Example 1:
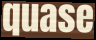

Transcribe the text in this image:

quase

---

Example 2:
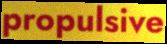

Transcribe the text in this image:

propulsive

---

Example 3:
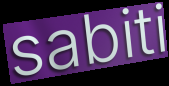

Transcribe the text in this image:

sabiti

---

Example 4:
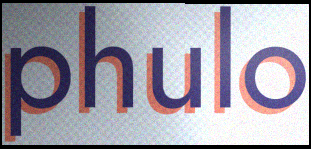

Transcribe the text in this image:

phulo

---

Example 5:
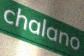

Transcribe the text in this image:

chalano